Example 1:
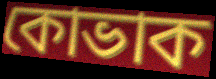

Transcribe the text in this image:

কোভাক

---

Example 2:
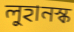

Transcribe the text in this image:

লুহানস্ক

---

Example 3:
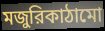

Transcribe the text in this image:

মজুরিকাঠামো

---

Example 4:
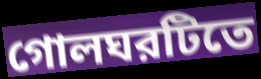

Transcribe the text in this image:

গোলঘরটিতে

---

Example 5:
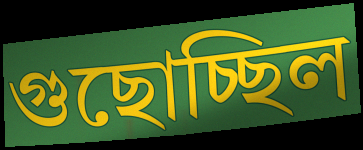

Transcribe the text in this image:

গুছোচ্ছিল